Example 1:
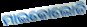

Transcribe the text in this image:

ମାଇକୋଲୋଜି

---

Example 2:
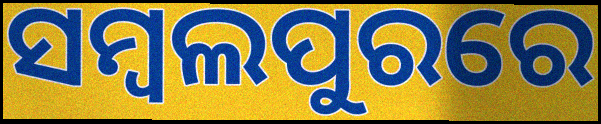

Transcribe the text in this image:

ସମ୍ବଲପୁରରେ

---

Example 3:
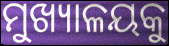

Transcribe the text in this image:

ମୁଖ୍ୟାଳୟକୁ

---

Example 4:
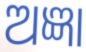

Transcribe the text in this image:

ଅଜ୍ଞା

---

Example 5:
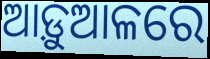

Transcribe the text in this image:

ଆଡ଼ୁଆଳରେ